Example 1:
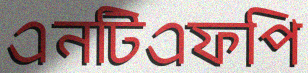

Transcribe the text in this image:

এনটিএফপি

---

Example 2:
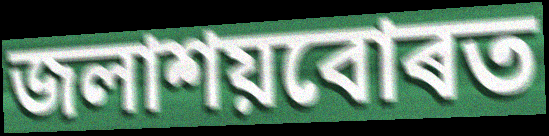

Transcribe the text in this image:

জলাশয়বোৰত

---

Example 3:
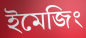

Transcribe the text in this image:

ইমেজিং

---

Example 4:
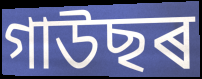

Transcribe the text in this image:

গাউছৰ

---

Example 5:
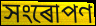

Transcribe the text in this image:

সংৰোপণ